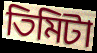
তিমিটা